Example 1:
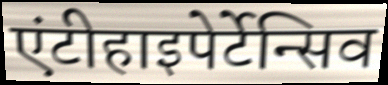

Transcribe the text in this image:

एंटीहाइपेर्टेन्सिव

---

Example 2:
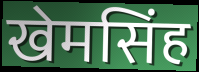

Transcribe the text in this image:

खेमसिंह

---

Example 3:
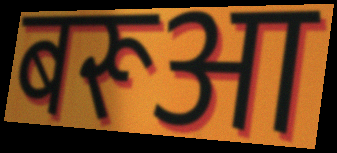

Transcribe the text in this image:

बरूआ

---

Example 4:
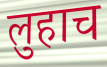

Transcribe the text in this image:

लुहाच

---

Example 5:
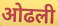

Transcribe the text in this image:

ओढली